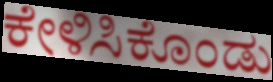
ಕೇಳಿಸಿಕೊಂಡು